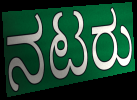
ನಟರು